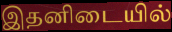
இதனிடையில்